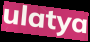
ulatya